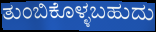
ತುಂಬಿಕೊಳ್ಳಬಹುದು